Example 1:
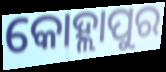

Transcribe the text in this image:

କୋହ୍ଲାପୁର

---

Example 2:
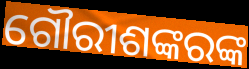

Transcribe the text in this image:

ଗୌରୀଶଙ୍କରଙ୍କ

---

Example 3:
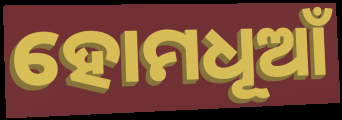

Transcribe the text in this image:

ହୋମଧୂଆଁ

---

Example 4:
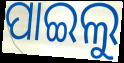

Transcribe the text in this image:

ପାଇଲୁ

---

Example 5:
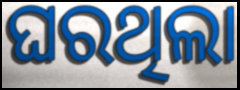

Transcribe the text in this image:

ଘରଥିଲା